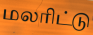
மலரிட்டு